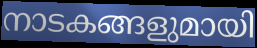
നാടകങ്ങളുമായി